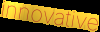
innovative